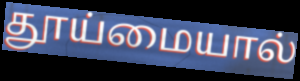
தூய்மையால்